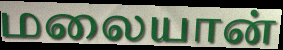
மலையான்